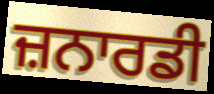
ਜ਼ਨਾਰਡੀ